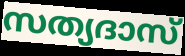
സത്യദാസ്